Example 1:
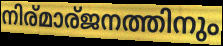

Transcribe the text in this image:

നിര്മാര്ജനത്തിനും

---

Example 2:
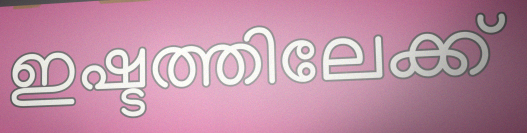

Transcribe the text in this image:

ഇഷ്ടത്തിലേക്ക്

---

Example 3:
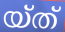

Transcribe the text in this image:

യ്ത്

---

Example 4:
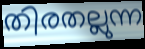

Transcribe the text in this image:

തിരതല്ലുന്ന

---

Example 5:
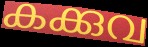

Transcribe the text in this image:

കക്കുവ